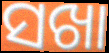
ସଖା